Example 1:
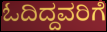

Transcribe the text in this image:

ಓದಿದ್ದವರಿಗೆ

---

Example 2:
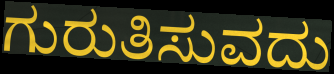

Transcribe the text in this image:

ಗುರುತಿಸುವದು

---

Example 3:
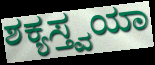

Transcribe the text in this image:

ಶಕ್ಯಸ್ತ್ವಯಾ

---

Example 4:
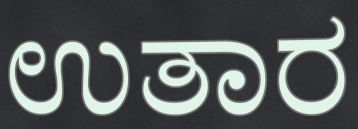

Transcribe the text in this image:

ಉತಾರ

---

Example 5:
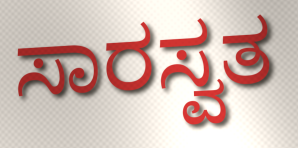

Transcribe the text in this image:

ಸಾರಸ್ವತ